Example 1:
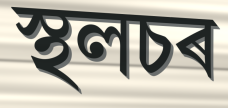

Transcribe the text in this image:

স্থলচৰ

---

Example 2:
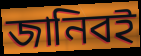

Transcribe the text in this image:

জানিবই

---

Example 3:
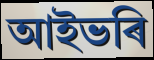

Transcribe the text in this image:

আইভৰি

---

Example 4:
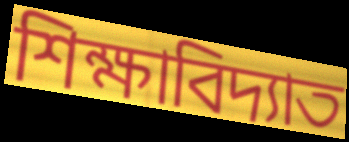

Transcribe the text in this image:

শিক্ষাবিদ্যাত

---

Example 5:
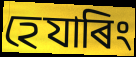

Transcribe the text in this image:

হেযাৰিং